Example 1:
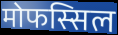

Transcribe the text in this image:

मोफस्सिल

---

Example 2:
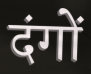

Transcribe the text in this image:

दंगों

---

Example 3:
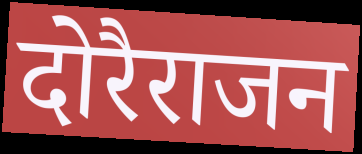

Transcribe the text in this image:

दोरैराजन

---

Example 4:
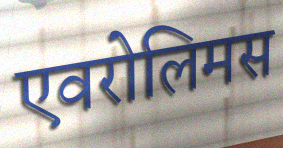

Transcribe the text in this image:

एवरोलिमस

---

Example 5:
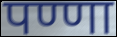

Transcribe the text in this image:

पण्णा